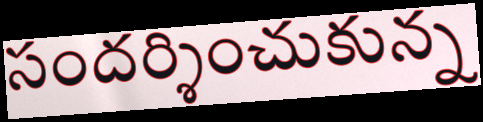
సందర్శించుకున్న